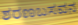
ಶರಣಬಸವನ